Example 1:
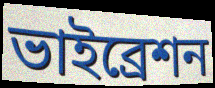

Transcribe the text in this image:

ভাইব্রেশন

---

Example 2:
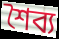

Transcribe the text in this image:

শৈব্য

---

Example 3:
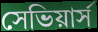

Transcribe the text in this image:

সেভিয়ার্স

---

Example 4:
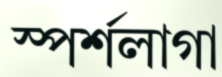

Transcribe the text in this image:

স্পর্শলাগা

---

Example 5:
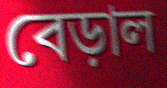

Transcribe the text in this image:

বেড়াল